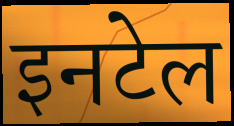
इनटेल